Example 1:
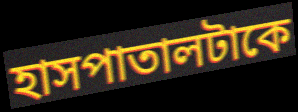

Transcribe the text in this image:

হাসপাতালটাকে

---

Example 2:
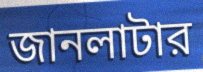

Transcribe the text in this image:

জানলাটার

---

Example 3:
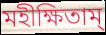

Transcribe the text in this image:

মহীক্ষিতাম্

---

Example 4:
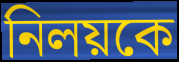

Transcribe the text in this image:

নিলয়কে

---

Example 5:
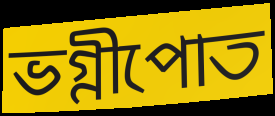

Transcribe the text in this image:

ভগ্নীপোত